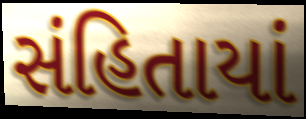
સંહિતાયાં